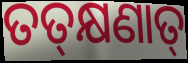
ତତ୍‍କ୍ଷଣାତ୍